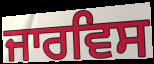
ਜਾਰਵਿਸ